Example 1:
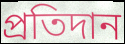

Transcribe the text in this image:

প্ৰতিদান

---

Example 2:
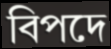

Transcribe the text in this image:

বিপদে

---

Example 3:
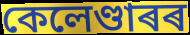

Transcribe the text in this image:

কেলেণ্ডাৰৰ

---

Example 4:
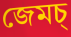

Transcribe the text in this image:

জেমচ্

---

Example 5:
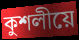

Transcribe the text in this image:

কুশলীয়ে